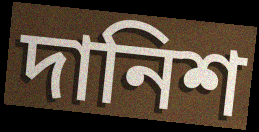
দানিশ